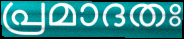
പ്രമാദതഃ